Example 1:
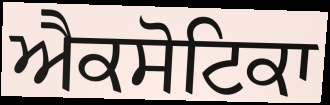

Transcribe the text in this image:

ਐਕਸੋਟਿਕਾ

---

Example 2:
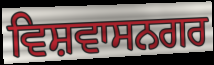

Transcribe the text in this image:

ਵਿਸ਼ਵਾਸਨਗਰ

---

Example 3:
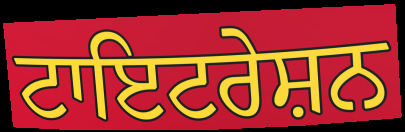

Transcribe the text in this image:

ਟਾਇਟਰੇਸ਼ਨ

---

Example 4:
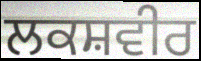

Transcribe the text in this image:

ਲਕਸ਼ਵੀਰ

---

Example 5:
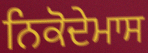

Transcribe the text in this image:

ਨਿਕੋਦੇਮਾਸ